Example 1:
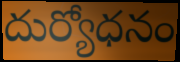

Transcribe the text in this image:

దుర్యోధనం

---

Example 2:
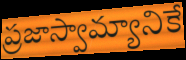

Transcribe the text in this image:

ప్రజాస్వామ్యానికే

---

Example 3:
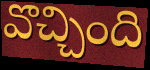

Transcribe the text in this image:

వొచ్చింది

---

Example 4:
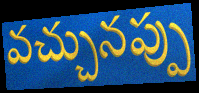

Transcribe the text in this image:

వచ్చునప్పు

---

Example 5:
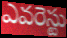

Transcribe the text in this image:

ఎవరెస్టు